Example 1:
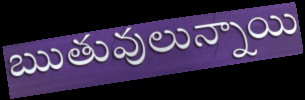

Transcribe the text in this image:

ఋతువులున్నాయి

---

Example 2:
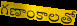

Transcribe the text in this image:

గణాంకాలతో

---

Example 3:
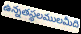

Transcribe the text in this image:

ఉన్నతస్థలములమీది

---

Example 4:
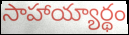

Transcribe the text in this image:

సాహాయ్యార్థం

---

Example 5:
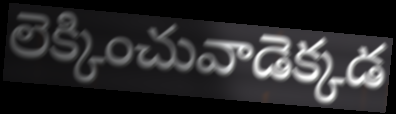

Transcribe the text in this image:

లెక్కించువాడెక్కడ